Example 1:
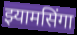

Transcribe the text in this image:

झ्यामसिंगा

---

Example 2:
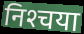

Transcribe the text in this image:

निश्चया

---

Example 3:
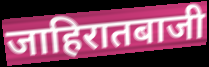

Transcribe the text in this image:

जाहिरातबाजी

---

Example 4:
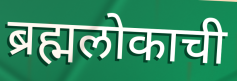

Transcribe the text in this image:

ब्रह्मलोकाची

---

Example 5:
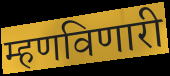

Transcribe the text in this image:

म्हणविणारी